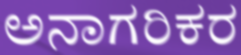
ಅನಾಗರಿಕರ